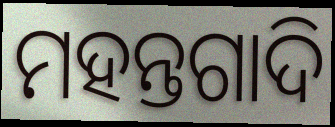
ମହନ୍ତଗାଦି